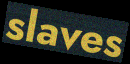
slaves